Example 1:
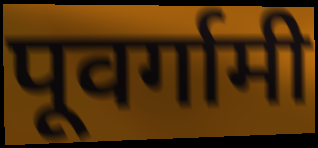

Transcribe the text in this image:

पूवर्गामी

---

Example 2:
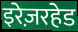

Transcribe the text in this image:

इरेज़रहेड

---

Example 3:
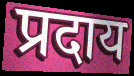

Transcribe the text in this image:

प्रदाय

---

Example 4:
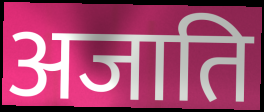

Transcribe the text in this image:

अजाति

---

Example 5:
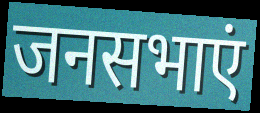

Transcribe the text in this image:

जनसभाएं